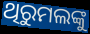
ଥିରୁମଲଙ୍କୁ